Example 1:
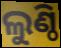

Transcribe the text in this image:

ଲୁଣ୍ଠି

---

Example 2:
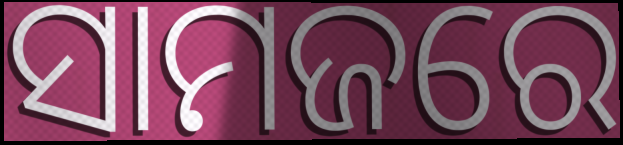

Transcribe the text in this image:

ସାମଜରେ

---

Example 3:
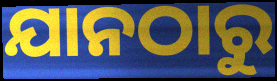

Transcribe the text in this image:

ଯାନଠାରୁ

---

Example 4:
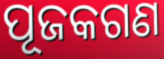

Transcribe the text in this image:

ପୂଜକଗଣ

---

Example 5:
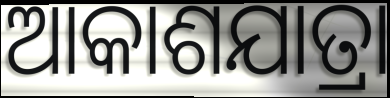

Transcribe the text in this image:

ଆକାଶଯାତ୍ରା